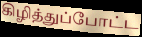
கிழித்துப்போட்ட